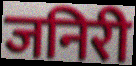
जनिरी